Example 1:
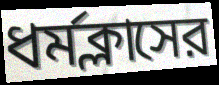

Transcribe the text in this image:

ধর্মক্লাসের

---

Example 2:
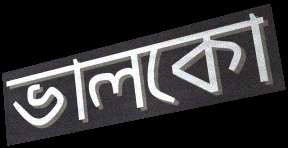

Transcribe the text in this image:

ভালকো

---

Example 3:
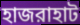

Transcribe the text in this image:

হাজরাহাট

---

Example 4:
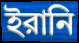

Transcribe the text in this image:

ইরানি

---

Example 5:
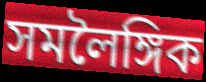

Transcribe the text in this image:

সমলৈঙ্গিক